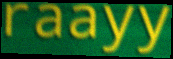
raayy